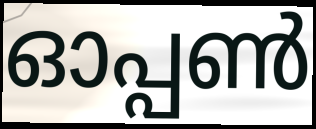
ഓപ്പൺ